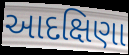
આદક્ષિણા